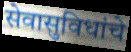
सेवासुविधांचे